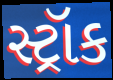
સ્ટ્રૉક